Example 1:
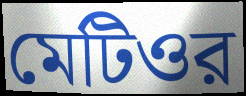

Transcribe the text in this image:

মেটিওর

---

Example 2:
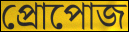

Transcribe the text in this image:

প্রোপোজ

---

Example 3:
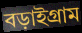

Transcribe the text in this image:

বড়াইগ্রাম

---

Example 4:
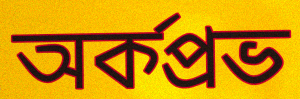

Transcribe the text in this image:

অর্কপ্রভ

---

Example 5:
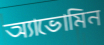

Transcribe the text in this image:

অ্যাভোমিন